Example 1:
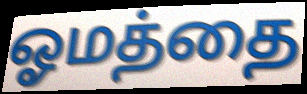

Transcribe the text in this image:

ஓமத்தை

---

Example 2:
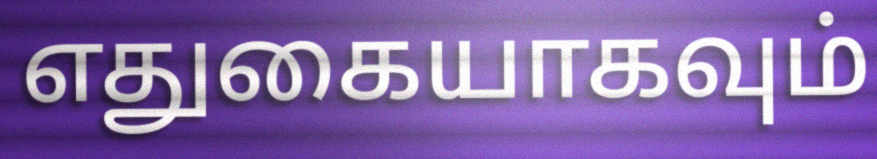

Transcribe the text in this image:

எதுகையாகவும்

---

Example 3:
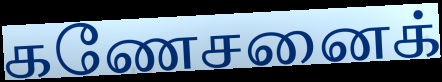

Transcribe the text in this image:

கணேசனைக்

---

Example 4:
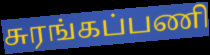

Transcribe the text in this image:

சுரங்கப்பணி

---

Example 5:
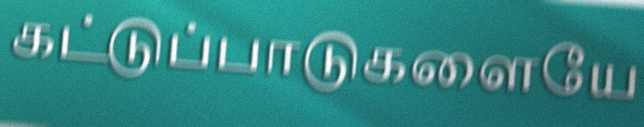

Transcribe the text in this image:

கட்டுப்பாடுகளையே